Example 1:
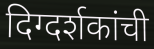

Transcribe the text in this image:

दिग्दर्शकांची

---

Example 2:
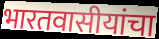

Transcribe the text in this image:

भारतवासीयांचा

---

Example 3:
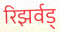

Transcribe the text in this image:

रिझर्वड्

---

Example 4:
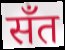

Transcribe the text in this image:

सँत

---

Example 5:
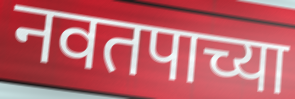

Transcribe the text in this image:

नवतपाच्या